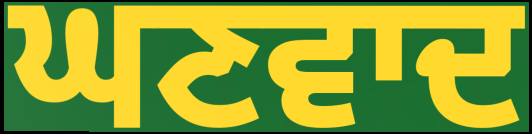
ਘਣਵਾਦ